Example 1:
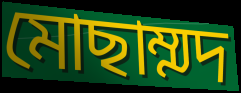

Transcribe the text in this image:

মোছাম্মদ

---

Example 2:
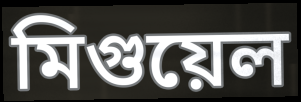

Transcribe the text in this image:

মিগুয়েল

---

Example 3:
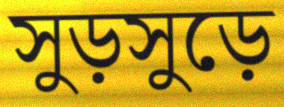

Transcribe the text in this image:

সুড়সুড়ে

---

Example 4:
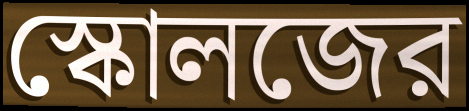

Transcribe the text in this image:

স্কোলজের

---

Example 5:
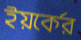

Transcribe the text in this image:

ইয়র্কের